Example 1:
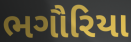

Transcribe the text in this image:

ભગૌરિયા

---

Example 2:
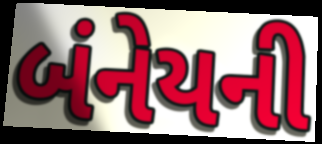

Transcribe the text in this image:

બંનેયની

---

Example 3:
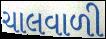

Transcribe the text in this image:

ચાલવાળી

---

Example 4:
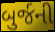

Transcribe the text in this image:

બુર્જની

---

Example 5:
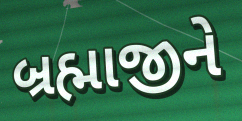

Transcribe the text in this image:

બ્રહ્માજીને